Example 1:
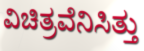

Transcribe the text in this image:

ವಿಚಿತ್ರವೆನಿಸಿತ್ತು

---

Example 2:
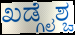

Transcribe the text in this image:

ಖಡ್ಗೈಶ್ಚ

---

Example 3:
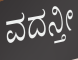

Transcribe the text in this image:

ವದನ್ತೀ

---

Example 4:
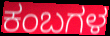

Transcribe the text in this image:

ಕಂಬಗಳ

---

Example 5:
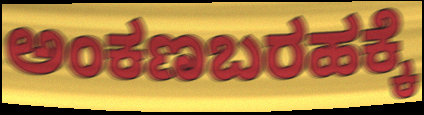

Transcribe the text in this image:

ಅಂಕಣಬರಹಕ್ಕೆ